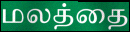
மலத்தை